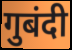
गुबंदी